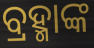
ବ୍ରହ୍ମାଙ୍କ